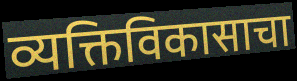
व्यक्तिविकासाचा